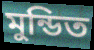
মুন্ডিত